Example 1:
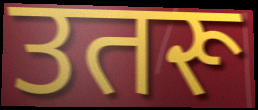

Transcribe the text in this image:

उतरू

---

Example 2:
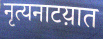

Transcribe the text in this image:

नृत्यनाटय़ात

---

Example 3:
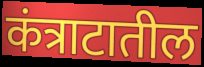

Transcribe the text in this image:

कंत्राटातील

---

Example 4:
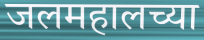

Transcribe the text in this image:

जलमहालच्या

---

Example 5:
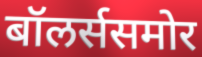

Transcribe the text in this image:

बॉलर्ससमोर